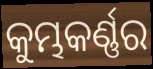
କୁମ୍ଭକର୍ଣ୍ଣର